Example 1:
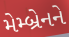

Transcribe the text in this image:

મેમ્બ્રેનને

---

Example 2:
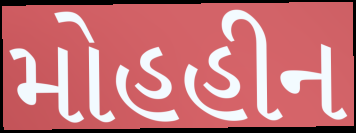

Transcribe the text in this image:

મોહહીન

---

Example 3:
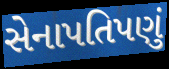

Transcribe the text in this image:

સેનાપતિપણું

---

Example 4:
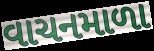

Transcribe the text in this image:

વાચનમાળા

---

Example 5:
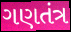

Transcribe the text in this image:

ગણતંત્ર